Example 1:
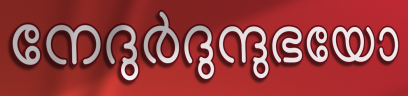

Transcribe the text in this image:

നേദുർദുന്ദുഭയോ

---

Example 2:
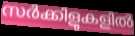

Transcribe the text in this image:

സർക്കിളുകളിൽ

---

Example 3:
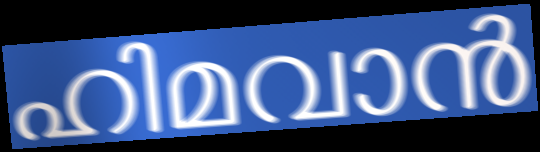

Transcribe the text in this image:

ഹിമവാൻ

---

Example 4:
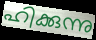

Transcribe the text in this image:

ഹിക്കുന്നു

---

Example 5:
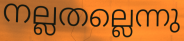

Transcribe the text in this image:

നല്ലതല്ലെന്നു